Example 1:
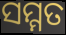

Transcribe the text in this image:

ସମ୍ମତ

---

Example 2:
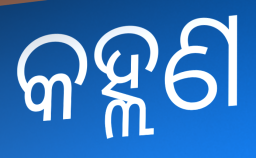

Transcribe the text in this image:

କହ୍ଲଣ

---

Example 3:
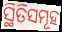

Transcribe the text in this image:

ସ୍ଥିତିସମୂହ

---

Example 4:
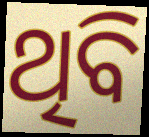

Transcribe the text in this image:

ଥିବି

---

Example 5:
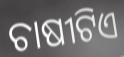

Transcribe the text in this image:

ଚାଷୀଟିଏ